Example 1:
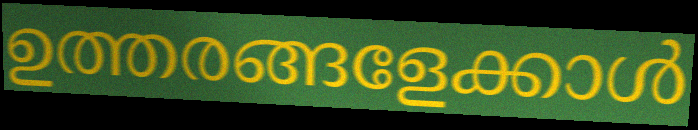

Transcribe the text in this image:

ഉത്തരങ്ങളേക്കാൾ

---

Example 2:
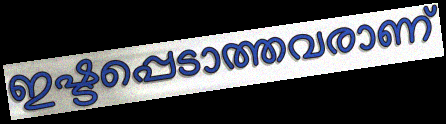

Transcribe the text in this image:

ഇഷ്ടപ്പെടാത്തവരാണ്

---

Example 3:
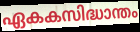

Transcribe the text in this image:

ഏകകസിദ്ധാന്തം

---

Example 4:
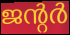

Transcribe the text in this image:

ജന്റർ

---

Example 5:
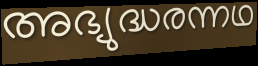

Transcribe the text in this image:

അഭ്യുദ്ധരന്നഥ